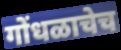
गोंधळाचेच